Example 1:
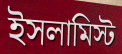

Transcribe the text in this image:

ইসলামিস্ট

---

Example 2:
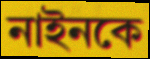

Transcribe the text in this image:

নাইনকে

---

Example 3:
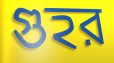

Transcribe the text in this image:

গুহর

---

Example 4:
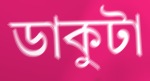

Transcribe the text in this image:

ডাকুটা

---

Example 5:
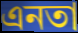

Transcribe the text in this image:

এনতা